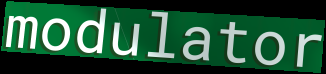
modulator